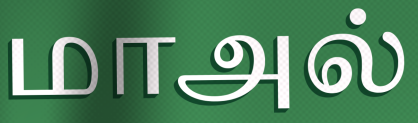
மாஅல்